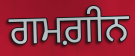
ਗਮਗ਼ੀਨ